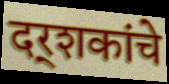
दर्शकांचे